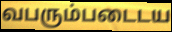
வபரும்படைடய